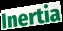
Inertia